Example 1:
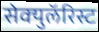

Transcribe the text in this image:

सेक्युलॅरिस्ट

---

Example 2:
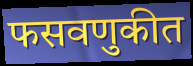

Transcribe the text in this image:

फसवणुकीत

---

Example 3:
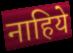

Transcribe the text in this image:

नाहिये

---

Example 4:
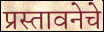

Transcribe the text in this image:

प्रस्तावनेचे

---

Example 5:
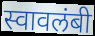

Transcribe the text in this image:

स्वावलंबी